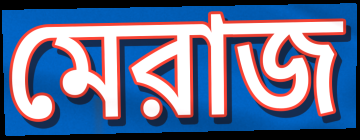
মেরাজ